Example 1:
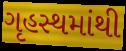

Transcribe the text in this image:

ગૃહસ્થમાંથી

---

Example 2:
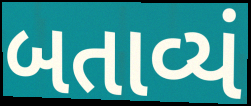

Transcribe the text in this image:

બતાવ્યં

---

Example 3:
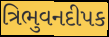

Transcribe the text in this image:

ત્રિભુવનદીપક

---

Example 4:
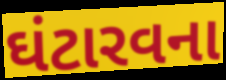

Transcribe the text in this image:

ઘંટારવના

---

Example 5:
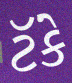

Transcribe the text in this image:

ટૅંકે